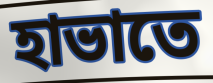
হাভাতে